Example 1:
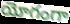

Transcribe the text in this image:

యోగంగా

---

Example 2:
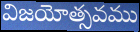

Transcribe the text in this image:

విజయోత్సవము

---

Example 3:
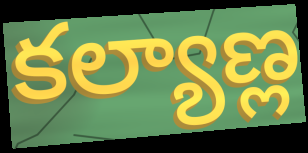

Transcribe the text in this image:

కల్యాణ్ల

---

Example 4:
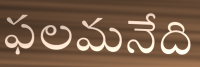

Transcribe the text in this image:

ఫలమనేది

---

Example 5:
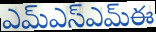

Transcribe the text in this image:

ఎమ్ఎస్ఎమ్ఈ